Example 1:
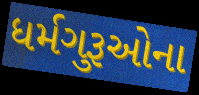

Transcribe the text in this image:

ધર્મગુરૂઓના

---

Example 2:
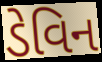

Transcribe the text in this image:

ડેવિન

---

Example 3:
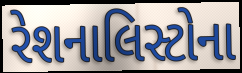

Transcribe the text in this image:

રેશનાલિસ્ટોના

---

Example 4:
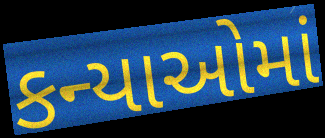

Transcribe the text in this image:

કન્યાઓમાં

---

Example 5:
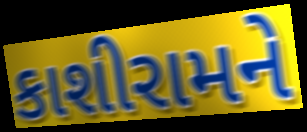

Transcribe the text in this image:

કાશીરામને